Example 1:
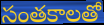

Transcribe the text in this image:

సంతకాలతో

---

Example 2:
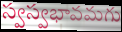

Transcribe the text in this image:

స్వస్వభావమగు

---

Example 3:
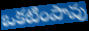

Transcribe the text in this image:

ఒకటింపావు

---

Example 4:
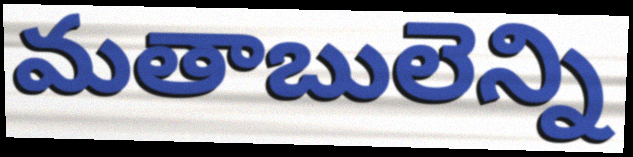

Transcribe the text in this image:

మతాబులెన్ని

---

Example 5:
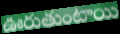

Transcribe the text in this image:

ఊరుతుంటాయి